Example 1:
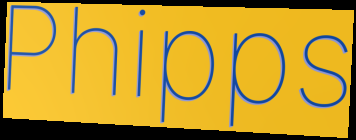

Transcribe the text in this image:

Phipps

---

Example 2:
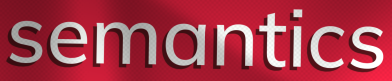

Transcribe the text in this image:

semantics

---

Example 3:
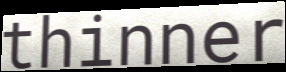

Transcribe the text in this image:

thinner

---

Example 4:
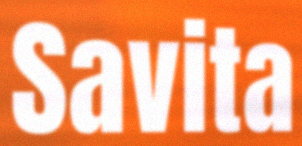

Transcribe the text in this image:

Savita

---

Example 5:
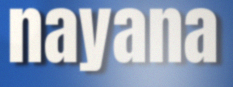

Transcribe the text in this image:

nayana